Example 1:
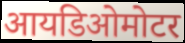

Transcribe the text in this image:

आयडिओमोटर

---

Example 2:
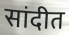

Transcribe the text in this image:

सांदीत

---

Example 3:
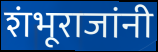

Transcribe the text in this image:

शंभूराजांनी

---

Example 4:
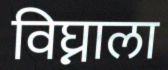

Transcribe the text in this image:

विघ्नाला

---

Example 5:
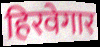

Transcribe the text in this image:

हिरवेगार